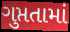
ગુપ્તતામાં